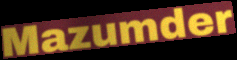
Mazumder